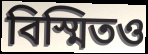
বিস্মিতও